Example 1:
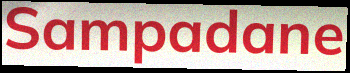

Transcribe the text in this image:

Sampadane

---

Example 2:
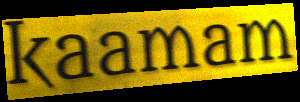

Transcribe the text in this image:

kaamam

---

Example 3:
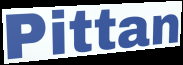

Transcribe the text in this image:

Pittan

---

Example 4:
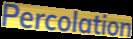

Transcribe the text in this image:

Percolation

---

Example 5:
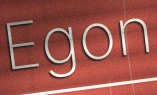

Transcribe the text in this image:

Egon